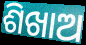
ଶିଖାଅ